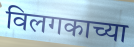
विलगकाच्या